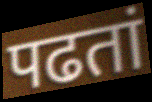
पढतां